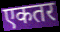
एकतर